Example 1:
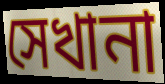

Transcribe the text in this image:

সেখানা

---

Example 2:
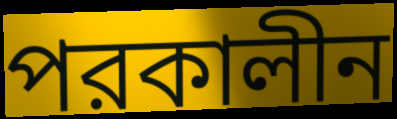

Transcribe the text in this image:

পরকালীন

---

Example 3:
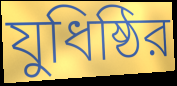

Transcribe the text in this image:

যুধিষ্ঠির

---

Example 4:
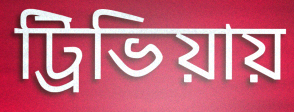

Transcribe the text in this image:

ট্রিভিয়ায়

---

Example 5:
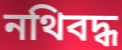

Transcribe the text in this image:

নথিবদ্ধ